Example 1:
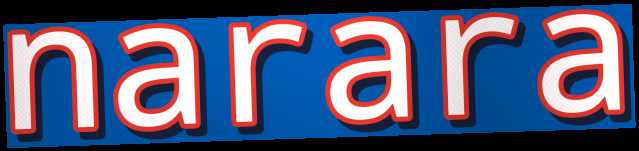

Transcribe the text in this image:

narara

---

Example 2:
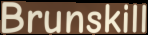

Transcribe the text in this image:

Brunskill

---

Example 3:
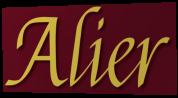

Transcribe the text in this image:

Alier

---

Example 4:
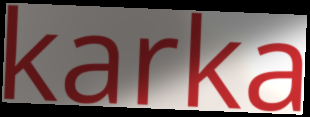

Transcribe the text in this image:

karka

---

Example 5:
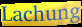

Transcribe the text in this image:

Lachung